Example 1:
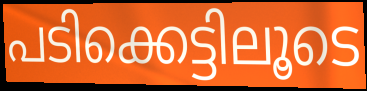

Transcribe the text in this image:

പടിക്കെട്ടിലൂടെ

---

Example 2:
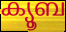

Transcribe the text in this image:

ക്യൂബ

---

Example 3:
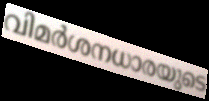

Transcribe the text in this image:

വിമർശനധാരയുടെ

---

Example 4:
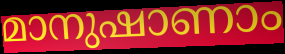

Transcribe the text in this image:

മാനുഷാണാം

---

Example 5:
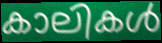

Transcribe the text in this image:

കാലികൾ